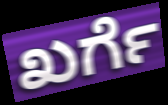
ಖರ್ಗೆ